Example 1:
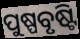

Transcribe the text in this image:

ପୁଷ୍ପବୃଷ୍ଟି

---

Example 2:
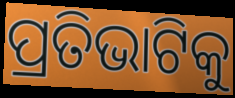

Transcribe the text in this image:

ପ୍ରତିଭାଟିକୁ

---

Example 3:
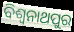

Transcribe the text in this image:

ବିଶ୍ଵନାଥପୁର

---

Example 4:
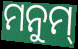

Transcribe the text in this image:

ମନୁମ୍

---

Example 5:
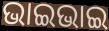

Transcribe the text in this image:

ଭାଇଭାଇ